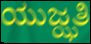
ಯುಜ್ಝತಿ